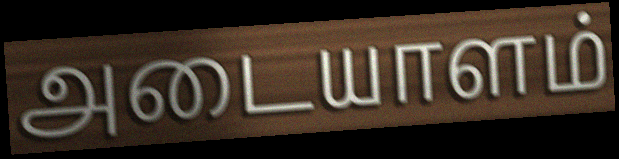
அடையாளம்